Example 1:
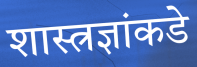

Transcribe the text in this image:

शास्त्रज्ञांकडे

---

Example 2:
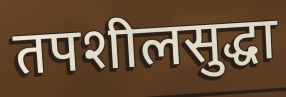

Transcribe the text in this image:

तपशीलसुद्धा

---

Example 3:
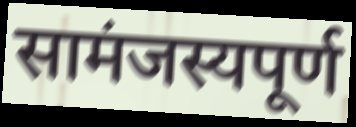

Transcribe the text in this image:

सामंजस्यपूर्ण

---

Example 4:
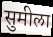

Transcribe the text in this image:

सुमीला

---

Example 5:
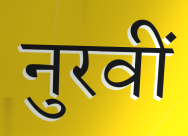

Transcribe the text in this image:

नुरवीं